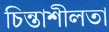
চিন্তাশীলতা